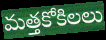
మత్తకోకిలలు